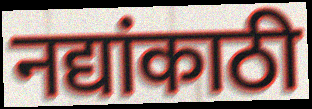
नद्यांकाठी